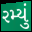
રમ્યું